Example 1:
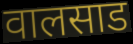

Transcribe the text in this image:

वालसाड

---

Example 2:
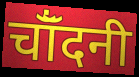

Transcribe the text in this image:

चॉँदनी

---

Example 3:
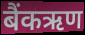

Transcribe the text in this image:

बैंकऋण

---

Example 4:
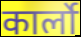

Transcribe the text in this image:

कार्लो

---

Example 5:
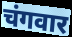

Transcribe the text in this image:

चंगवार